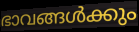
ഭാവങ്ങൾക്കും